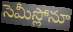
సెమీస్లోనూ